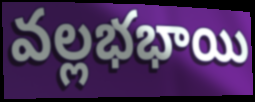
వల్లభభాయి